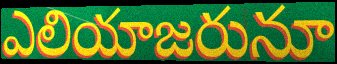
ఎలియాజరునూ